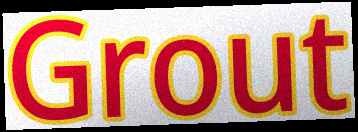
Grout